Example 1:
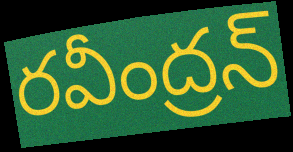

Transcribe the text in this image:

రవీంద్రన్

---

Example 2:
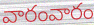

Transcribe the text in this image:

వారంవారం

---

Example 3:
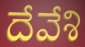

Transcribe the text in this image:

దేవేశి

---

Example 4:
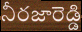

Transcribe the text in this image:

నీరజారెడ్డి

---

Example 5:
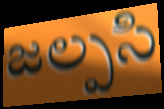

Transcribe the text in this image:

జల్పసి